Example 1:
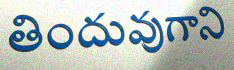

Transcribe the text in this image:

తిందువుగాని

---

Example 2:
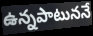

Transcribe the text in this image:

ఉన్నపాటుననే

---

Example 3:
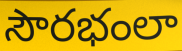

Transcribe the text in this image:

సౌరభంలా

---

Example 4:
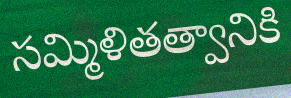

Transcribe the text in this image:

సమ్మిళితత్వానికి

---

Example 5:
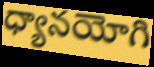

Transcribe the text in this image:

ధ్యానయోగి